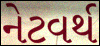
નેટવર્થ